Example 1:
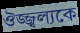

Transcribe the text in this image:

ঔজ্জ্বল্যকে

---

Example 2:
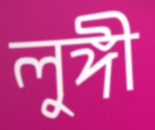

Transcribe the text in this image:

লুঙ্গী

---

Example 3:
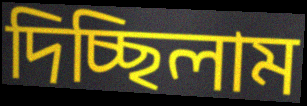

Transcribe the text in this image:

দিচ্ছিলাম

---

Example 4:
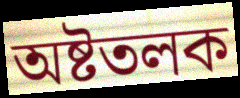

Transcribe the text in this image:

অষ্টতলক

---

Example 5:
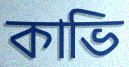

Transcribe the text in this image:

কাভি